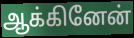
ஆக்கினேன்